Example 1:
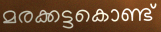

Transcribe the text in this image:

മരക്കട്ടകൊണ്ട്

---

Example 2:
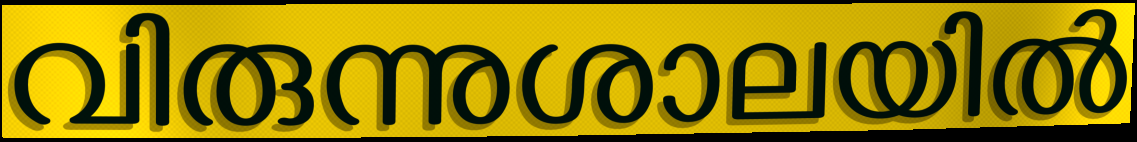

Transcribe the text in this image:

വിരുന്നുശാലയിൽ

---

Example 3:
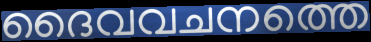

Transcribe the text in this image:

ദൈവവചനത്തെ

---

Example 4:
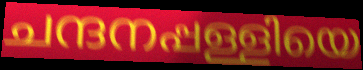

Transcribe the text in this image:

ചന്ദനപ്പള്ളിയെ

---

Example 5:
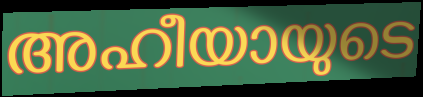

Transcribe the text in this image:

അഹീയായുടെ